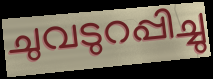
ചുവടുറപ്പിച്ചു